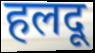
हलदू